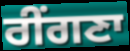
ਰੀਂਗਣਾ